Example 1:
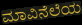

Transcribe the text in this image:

ಮಾವಿನೆಲೆಯ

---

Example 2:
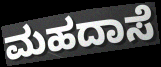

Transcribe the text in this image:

ಮಹದಾಸೆ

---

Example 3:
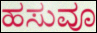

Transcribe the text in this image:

ಹಸುವೂ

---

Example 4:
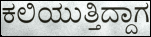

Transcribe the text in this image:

ಕಲಿಯುತ್ತಿದ್ದಾಗ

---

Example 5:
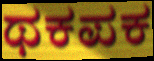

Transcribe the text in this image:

ಥಕಪಕ